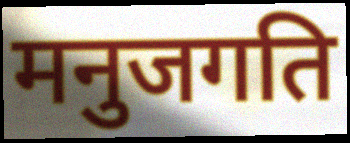
मनुजगति